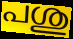
പശു